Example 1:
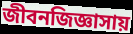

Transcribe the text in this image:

জীবনজিজ্ঞাসায়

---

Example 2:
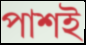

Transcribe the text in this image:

পাশই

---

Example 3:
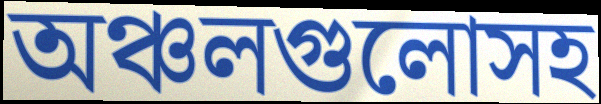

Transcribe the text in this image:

অঞ্চলগুলোসহ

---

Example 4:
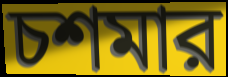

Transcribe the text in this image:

চশমার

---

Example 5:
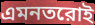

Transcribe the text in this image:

এমনতরোই